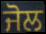
ਜੋਲ